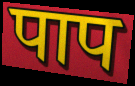
पाप